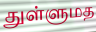
துள்ளுமத